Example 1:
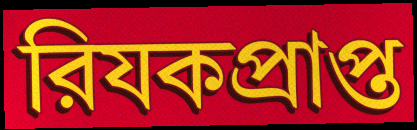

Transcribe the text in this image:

রিযকপ্রাপ্ত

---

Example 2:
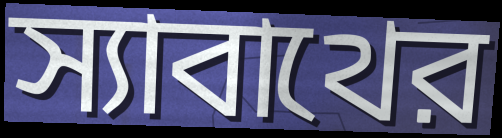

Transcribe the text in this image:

স্যাবাথের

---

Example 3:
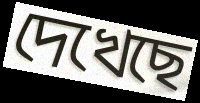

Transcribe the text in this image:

দেখেছে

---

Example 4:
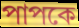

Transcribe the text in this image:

পাপকে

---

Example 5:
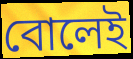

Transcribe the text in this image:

বোলেই